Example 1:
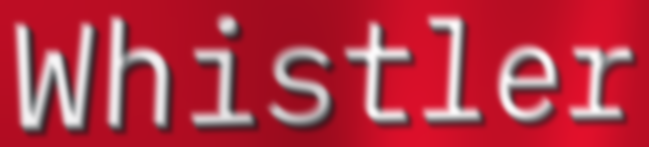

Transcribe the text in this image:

Whistler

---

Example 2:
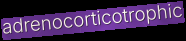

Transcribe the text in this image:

adrenocorticotrophic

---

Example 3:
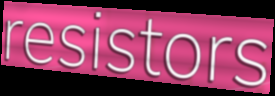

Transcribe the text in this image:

resistors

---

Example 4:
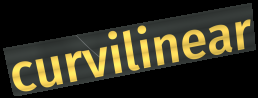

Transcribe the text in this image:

curvilinear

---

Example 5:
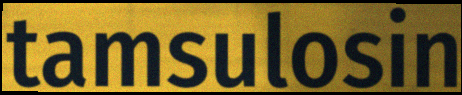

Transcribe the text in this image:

tamsulosin